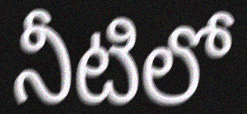
నీటిలో